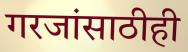
गरजांसाठीही